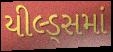
યીલ્ડ્સમાં